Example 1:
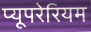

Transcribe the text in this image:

प्यूपरेरियम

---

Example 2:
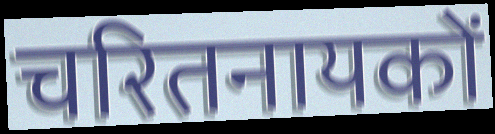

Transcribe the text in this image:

चरितनायकों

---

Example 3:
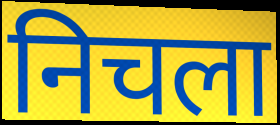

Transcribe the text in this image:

निचला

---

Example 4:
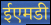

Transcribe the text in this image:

ईएमडी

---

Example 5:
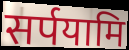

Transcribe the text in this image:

सर्पयामि